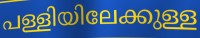
പള്ളിയിലേക്കുള്ള